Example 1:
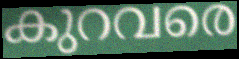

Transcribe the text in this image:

കുറവരെ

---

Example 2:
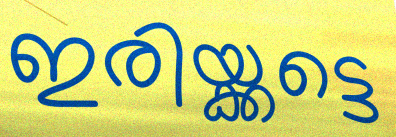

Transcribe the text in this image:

ഇരിയ്ക്കട്ടെ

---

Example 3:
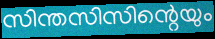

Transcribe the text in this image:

സിന്തസിസിന്റെയും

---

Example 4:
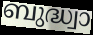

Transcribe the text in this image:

ബുദ്ധ്വാ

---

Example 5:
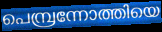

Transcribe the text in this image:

പെമ്പ്രന്നോത്തിയെ